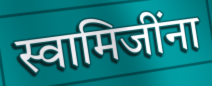
स्वामिजींना